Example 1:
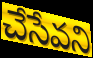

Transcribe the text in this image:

చేసేవని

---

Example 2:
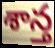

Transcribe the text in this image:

శాన్త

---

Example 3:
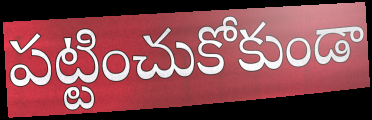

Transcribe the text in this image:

పట్టించుకోకుండా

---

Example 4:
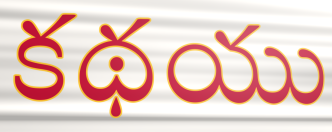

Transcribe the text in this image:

కథయు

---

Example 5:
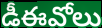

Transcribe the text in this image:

డీఈవోలు